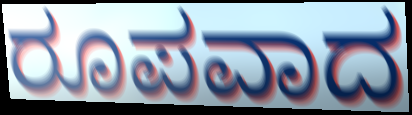
ರೂಪವಾದ